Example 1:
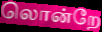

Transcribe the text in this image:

லொன்றே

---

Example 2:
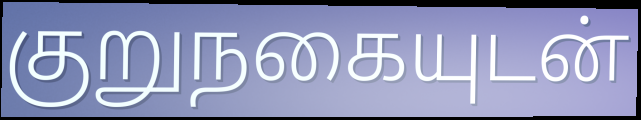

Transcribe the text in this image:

குறுநகையுடன்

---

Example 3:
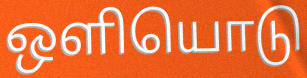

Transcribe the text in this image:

ஒளியொடு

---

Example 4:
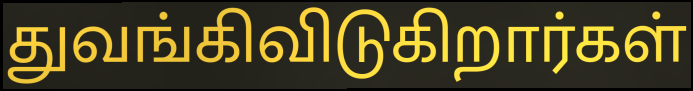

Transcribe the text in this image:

துவங்கிவிடுகிறார்கள்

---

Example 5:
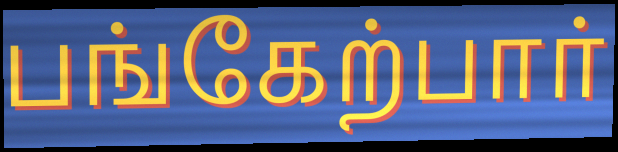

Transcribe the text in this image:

பங்கேற்பார்